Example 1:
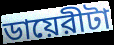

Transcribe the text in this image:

ডায়েরীটা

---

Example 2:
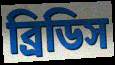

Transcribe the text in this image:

ব্রিডিস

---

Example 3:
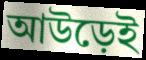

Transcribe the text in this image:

আউড়েই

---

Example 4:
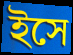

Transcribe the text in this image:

ইসে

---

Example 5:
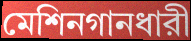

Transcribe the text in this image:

মেশিনগানধারী